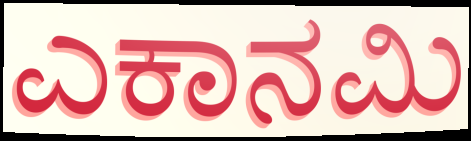
ಎಕಾನಮಿ